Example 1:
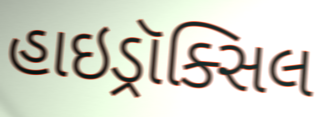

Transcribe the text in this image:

હાઇડ્રૉક્સિલ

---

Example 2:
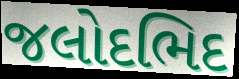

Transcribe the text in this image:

જલોદભિદ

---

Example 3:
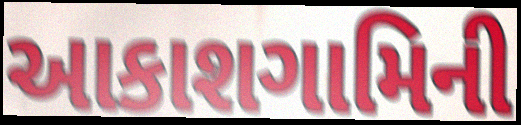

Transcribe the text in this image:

આકાશગામિની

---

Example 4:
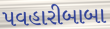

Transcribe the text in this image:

પવહારીબાબા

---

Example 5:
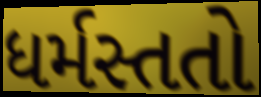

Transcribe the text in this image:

ધર્મસ્તતો